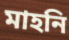
মাহনি